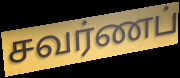
சவர்ணப்